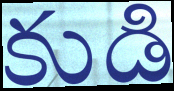
కుడి